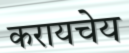
करायचेय